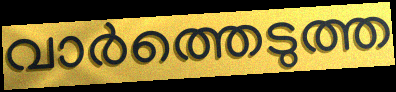
വാർത്തെടുത്ത